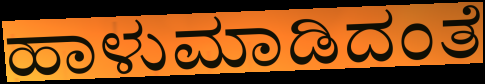
ಹಾಳುಮಾಡಿದಂತೆ